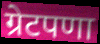
ग्रेटपणा